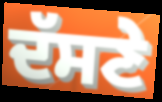
ਦੱਸਣੇ